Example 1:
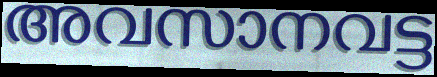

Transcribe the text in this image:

അവസാനവട്ട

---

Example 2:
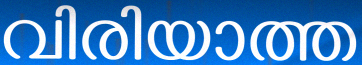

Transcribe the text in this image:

വിരിയാത്ത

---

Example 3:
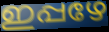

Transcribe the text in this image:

ഇപ്പഴേ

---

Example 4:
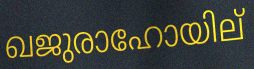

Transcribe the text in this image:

ഖജുരാഹോയില്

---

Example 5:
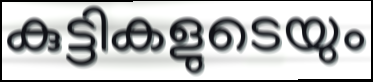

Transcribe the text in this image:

കുട്ടികളുടെയും